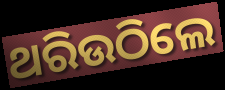
ଥରିଉଠିଲେ